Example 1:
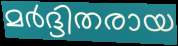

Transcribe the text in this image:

മർദ്ദിതരായ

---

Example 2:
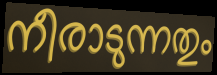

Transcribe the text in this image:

നീരാടുന്നതും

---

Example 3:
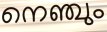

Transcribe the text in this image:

നെഞ്ചും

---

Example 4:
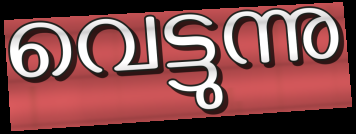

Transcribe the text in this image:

വെട്ടുന്നു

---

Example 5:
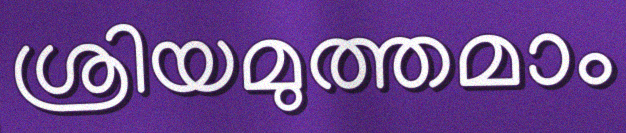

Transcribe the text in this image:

ശ്രിയമുത്തമാം